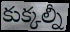
కుక్కల్నీ